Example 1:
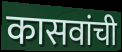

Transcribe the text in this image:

कासवांची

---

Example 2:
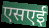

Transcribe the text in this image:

एसएई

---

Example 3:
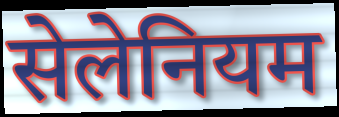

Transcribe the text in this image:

सेलेनियम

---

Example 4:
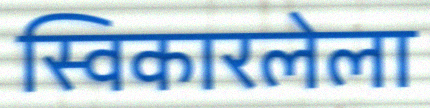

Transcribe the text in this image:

स्विकारलेला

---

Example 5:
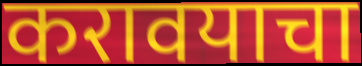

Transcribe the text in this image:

करावयाचा